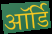
ऑर्डि